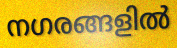
നഗരങ്ങളിൽ